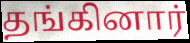
தங்கினார்